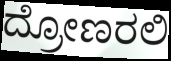
ದ್ರೋಣರಲಿ